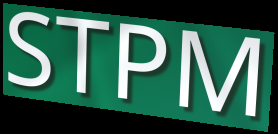
STPM